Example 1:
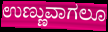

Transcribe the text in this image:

ಉಣ್ಣುವಾಗಲೂ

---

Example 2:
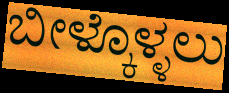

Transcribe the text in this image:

ಬೀಳ್ಕೊಳ್ಳಲು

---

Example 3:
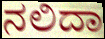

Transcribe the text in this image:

ನಲಿದಾ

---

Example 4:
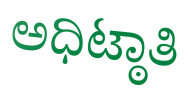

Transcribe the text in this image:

ಅಧಿಟ್ಠಾತಿ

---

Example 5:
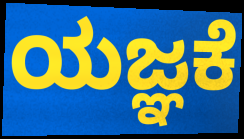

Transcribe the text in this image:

ಯಜ್ಞಕೆ